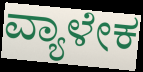
ವ್ಯಾಳೇಕ